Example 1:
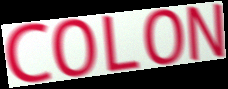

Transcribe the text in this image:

COLON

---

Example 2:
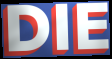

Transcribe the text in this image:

DIE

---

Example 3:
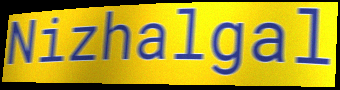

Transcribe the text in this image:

Nizhalgal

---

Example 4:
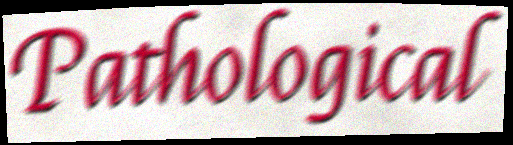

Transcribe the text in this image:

Pathological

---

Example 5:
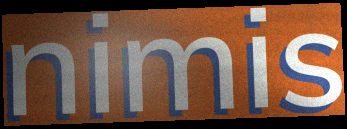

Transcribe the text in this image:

nimis